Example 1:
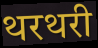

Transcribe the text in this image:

थरथरी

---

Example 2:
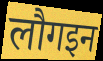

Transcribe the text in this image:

लौगइन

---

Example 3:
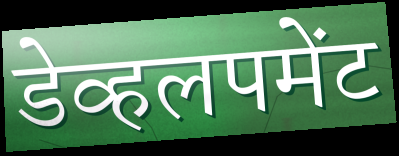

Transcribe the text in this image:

डेव्हलपमेंट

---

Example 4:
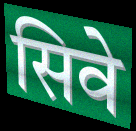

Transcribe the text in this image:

सिवे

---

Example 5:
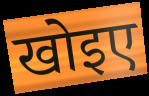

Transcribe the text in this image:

खोइए